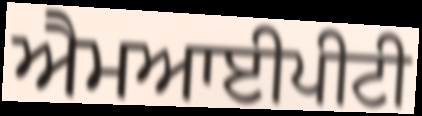
ਐਮਆਈਪੀਟੀ